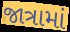
જાત્રામાં